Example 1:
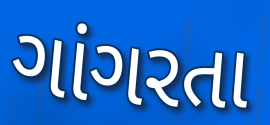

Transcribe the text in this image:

ગાંગરતા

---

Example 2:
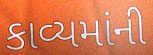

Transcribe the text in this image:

કાવ્યમાંની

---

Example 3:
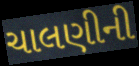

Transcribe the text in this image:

ચાલણીની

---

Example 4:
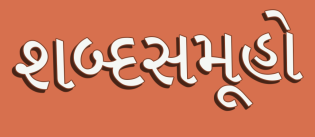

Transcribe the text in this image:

શબ્દસમૂહો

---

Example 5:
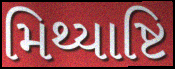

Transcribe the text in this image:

મિથ્યાષ્ટિ